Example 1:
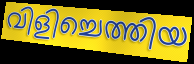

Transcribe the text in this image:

വിളിച്ചെത്തിയ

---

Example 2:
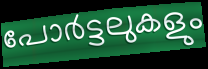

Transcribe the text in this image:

പോർട്ടലുകളും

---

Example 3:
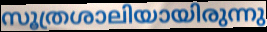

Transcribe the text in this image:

സൂത്രശാലിയായിരുന്നു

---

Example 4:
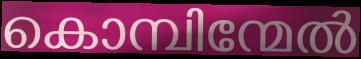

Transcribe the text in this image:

കൊമ്പിന്മേൽ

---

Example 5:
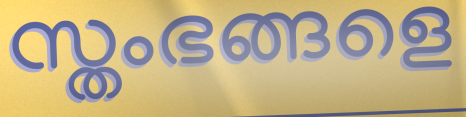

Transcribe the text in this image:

സ്തംഭങ്ങളെ